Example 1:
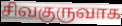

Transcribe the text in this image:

சிவகுருவாக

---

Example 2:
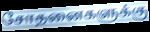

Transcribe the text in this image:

சோதனைகளுக்கு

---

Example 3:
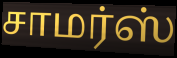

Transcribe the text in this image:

சாமர்ஸ்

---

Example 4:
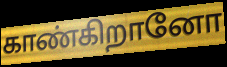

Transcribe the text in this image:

காண்கிறானோ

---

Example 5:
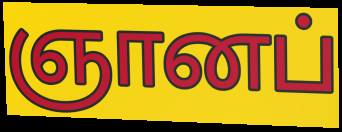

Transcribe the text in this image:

ஞானப்